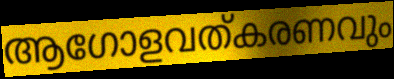
ആഗോളവത്കരണവും